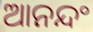
ଆନନ୍ଦଂ